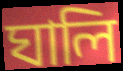
ঘালি